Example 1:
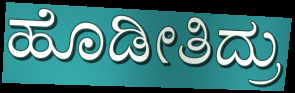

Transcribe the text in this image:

ಹೊಡೀತಿದ್ರು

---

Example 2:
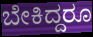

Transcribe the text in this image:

ಬೇಕಿದ್ದರೂ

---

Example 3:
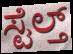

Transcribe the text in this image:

ಸ್ಟೆಲ್ತ್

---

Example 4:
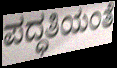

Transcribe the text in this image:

ಪದ್ಧತಿಯಂತೆ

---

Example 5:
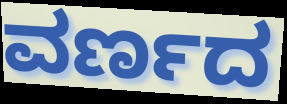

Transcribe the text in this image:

ವರ್ಣದ